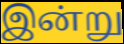
இன்று